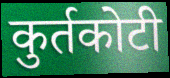
कुर्तकोटी